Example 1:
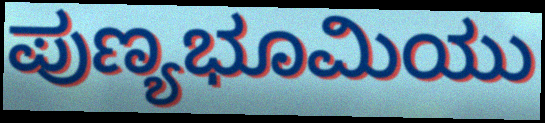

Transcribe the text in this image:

ಪುಣ್ಯಭೂಮಿಯು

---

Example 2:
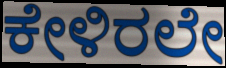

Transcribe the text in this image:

ಕೇಳಿರಲೇ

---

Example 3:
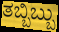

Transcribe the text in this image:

ತಬ್ಬಿಬ್ಬು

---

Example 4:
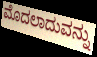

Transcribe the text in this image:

ಮೊದಲಾದುವನ್ನು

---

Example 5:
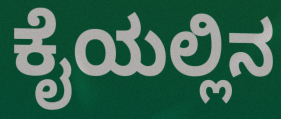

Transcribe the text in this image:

ಕೈಯಲ್ಲಿನ